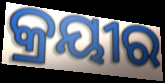
କ୍ରୟୀର